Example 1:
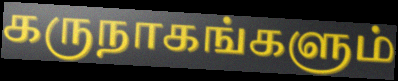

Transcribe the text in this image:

கருநாகங்களும்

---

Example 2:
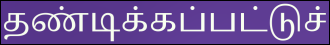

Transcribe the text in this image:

தண்டிக்கப்பட்டுச்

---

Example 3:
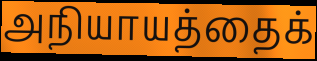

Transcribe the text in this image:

அநியாயத்தைக்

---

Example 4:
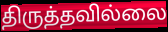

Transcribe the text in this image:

திருத்தவில்லை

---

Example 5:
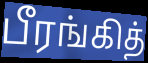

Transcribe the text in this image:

பீரங்கித்